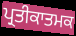
ਪ੍ਰਤੀਕਾਤਮਕ